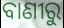
ବାଣୀରୁ